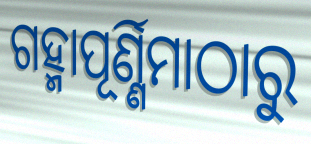
ଗହ୍ମାପୂର୍ଣ୍ଣିମାଠାରୁ